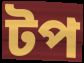
টপ